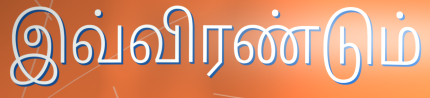
இவ்விரண்டும்